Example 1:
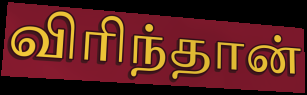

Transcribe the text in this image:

விரிந்தான்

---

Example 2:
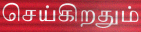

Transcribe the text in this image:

செய்கிறதும்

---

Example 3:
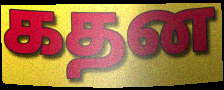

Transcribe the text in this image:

கதன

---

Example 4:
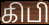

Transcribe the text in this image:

கிபி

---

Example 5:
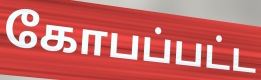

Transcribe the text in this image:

கோபப்பட்ட